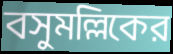
বসুমল্লিকের